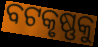
ବଟକୃଷ୍ଣକୁ